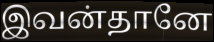
இவன்தானே